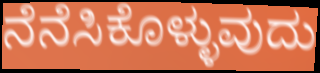
ನೆನೆಸಿಕೊಳ್ಳುವುದು